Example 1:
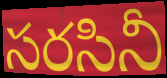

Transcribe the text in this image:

సరసినీ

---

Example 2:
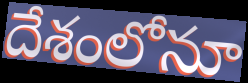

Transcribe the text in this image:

దేశంలోనూ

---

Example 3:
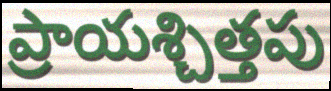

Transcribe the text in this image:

ప్రాయశ్చిత్తపు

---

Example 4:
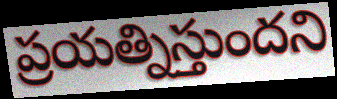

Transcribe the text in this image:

ప్రయత్నిస్తుందని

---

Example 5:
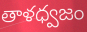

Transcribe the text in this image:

తాళధ్వజం